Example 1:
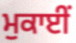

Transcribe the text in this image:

ਮੁਕਾਈਂ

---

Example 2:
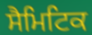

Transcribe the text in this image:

ਸੈਮਿਟਿਕ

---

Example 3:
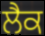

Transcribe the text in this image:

ਲੈਕ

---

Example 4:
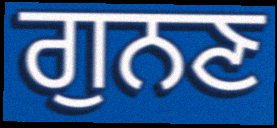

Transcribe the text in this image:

ਗੁਨਣ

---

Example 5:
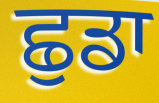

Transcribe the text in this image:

ਛੁਡਾ